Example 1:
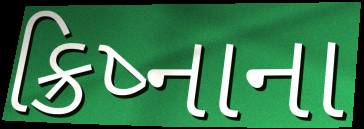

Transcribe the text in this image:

ક્રિષ્નાના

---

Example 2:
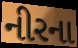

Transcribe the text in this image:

નીરના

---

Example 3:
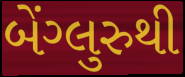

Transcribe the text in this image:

બેંગ્લુરુથી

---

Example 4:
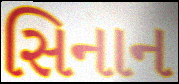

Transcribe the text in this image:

સિનાન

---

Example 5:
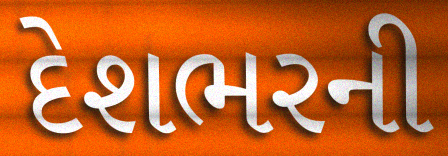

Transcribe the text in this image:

દેશભરની